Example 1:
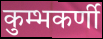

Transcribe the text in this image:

कुम्भकर्णी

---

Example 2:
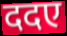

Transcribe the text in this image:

ददए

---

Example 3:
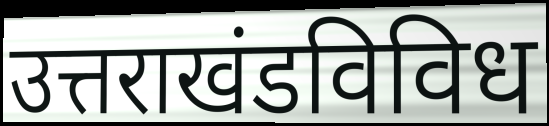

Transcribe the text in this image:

उत्तराखंडविविध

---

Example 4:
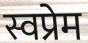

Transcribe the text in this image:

स्वप्रेम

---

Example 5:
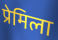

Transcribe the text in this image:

प्रेमिला